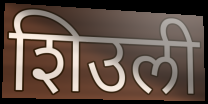
शिउली